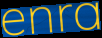
enra